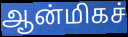
ஆன்மிகச்